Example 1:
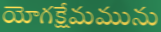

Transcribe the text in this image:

యోగక్షేమమును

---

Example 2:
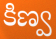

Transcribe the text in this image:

కిణ్వ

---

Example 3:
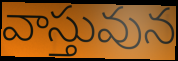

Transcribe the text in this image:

వాస్తువున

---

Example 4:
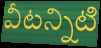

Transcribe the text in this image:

వీటన్నిటి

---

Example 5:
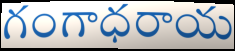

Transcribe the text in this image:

గంగాధరాయ